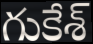
గుకేశ్